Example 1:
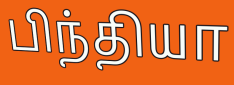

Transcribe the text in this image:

பிந்தியா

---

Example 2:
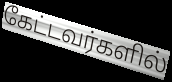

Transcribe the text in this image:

கேட்டவர்களில்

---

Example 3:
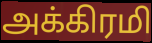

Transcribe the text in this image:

அக்கிரமி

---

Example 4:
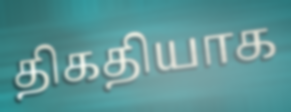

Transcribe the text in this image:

திகதியாக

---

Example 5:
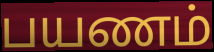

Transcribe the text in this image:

பயணம்